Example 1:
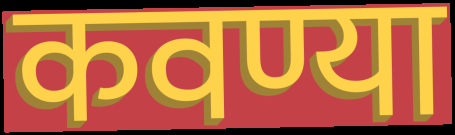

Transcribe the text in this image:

कवण्या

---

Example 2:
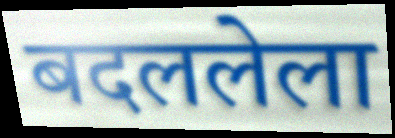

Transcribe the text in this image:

बदललेला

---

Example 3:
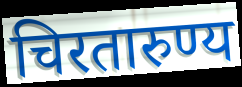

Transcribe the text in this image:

चिरतारुण्य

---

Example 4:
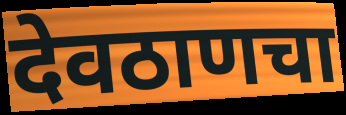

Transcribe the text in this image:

देवठाणचा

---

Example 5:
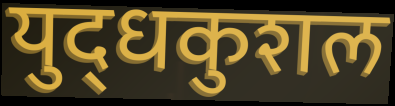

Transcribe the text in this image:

युद्धकुशल